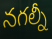
నగల్నీ